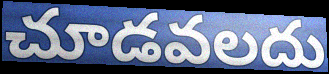
చూడవలదు